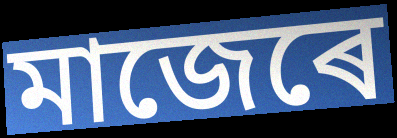
মাজেৰে